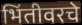
भिंतीवरचे